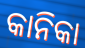
କାନିକା